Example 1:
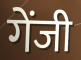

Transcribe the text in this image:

गेंजी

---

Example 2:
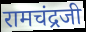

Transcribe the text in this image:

रामचंद्रजी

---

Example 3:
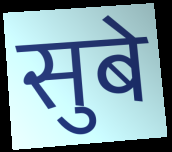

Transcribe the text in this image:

सुबे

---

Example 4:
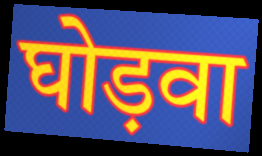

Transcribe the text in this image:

घोड़वा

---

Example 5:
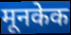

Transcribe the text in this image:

मूनकेक